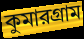
কুমারগ্রাম